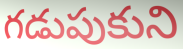
గడుపుకుని